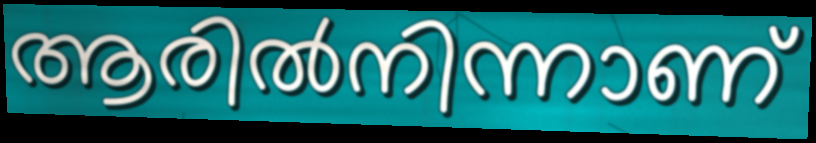
ആരിൽനിന്നാണ്